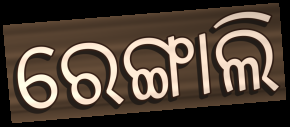
ରେଙ୍ଗାଲି